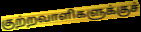
குற்றவாளிகளுக்குச்